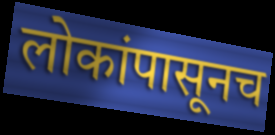
लोकांपासूनच